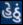
હેઠું